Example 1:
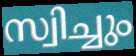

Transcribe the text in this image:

സ്വിച്ചും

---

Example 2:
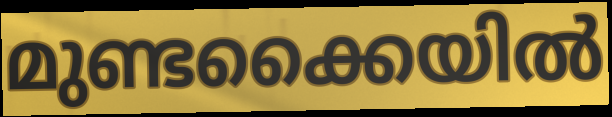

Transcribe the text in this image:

മുണ്ടക്കൈയിൽ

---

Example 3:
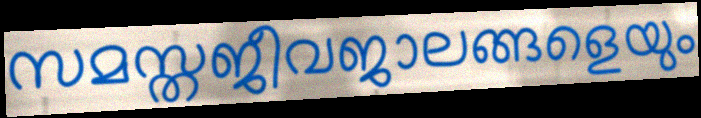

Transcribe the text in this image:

സമസ്തജീവജാലങ്ങളെയും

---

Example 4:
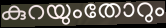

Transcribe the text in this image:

കുറയുംതോറും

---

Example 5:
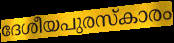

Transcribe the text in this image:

ദേശീയപുരസ്കാരം